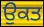
ਉਕਤ